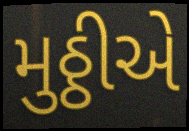
મુઠ્ઠીએ